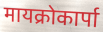
मायक्रोकार्पा